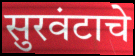
सुरवंटाचे